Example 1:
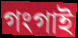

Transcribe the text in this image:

গংগাই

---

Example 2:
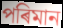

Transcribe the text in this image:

পৰিমান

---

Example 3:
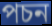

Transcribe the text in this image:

পচন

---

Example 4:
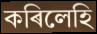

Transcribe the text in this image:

কৰিলেহি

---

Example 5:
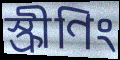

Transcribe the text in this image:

স্ক্ৰীণিং